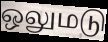
ஒலுமடு